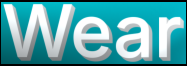
Wear